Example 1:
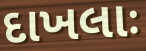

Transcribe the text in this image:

દાખલાઃ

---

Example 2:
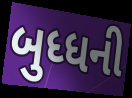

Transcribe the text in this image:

બુધ્ધની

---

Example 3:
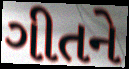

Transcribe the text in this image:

ગીતને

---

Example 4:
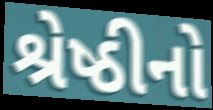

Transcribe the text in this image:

શ્રેષ્ઠીનો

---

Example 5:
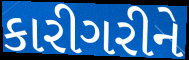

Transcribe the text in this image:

કારીગરીને